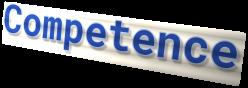
Competence